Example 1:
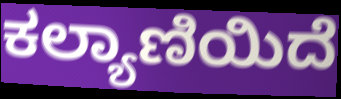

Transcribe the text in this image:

ಕಲ್ಯಾಣಿಯಿದೆ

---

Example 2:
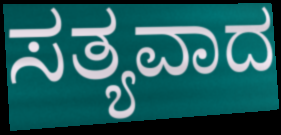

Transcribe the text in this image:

ಸತ್ಯವಾದ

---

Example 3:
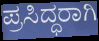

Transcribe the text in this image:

ಪ್ರಸಿದ್ಧರಾಗಿ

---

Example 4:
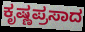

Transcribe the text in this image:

ಕೃಷ್ಣಪ್ರಸಾದ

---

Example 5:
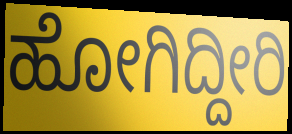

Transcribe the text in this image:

ಹೋಗಿದ್ದೀರಿ